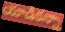
యాడికన్నా